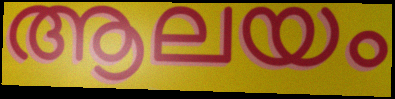
ആലയം